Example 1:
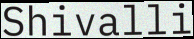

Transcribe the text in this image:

Shivalli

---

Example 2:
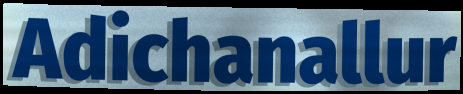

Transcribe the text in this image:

Adichanallur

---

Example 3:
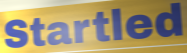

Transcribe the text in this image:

Startled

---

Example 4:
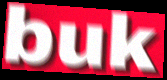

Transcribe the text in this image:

buk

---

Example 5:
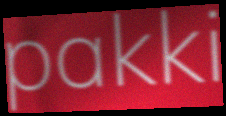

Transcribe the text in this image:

pakki